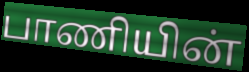
பாணியின்